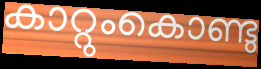
കാറ്റുംകൊണ്ടു